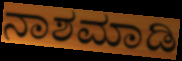
ನಾಶಮಾಡಿ